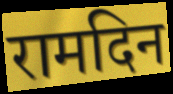
रामदिन